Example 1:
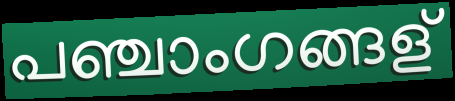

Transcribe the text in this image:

പഞ്ചാംഗങ്ങള്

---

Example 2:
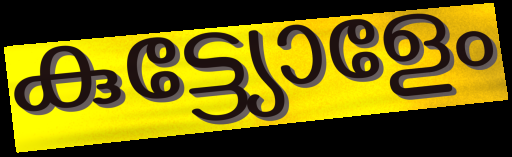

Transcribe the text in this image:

കുട്ട്യോളേം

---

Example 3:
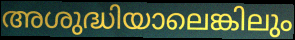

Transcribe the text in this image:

അശുദ്ധിയാലെങ്കിലും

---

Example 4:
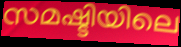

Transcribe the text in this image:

സമഷ്ടിയിലെ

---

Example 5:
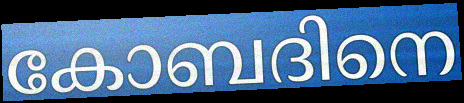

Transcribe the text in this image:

കോബദിനെ